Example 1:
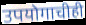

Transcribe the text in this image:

उपयोगाचीही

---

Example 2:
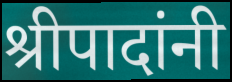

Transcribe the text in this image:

श्रीपादांनी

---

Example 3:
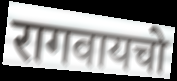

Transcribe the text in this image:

रागवायचो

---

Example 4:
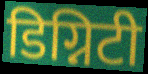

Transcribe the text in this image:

डिग्निटी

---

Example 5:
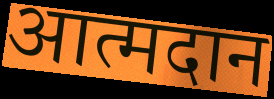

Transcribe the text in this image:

आत्मदान